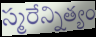
స్మరేన్నిత్యం